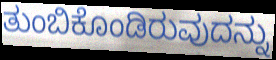
ತುಂಬಿಕೊಂಡಿರುವುದನ್ನು